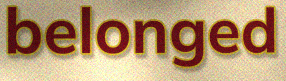
belonged